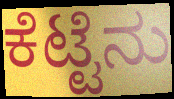
ಕೆಟ್ಟೆನು